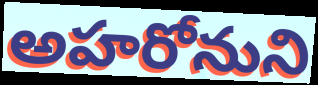
అహరోనుని